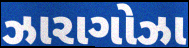
ઝારાગોઝા